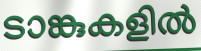
ടാങ്കുകളിൽ